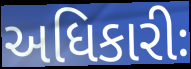
અધિકારીઃ